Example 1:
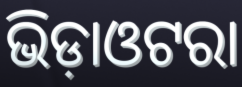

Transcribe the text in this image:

ଭିଡ଼ାଓଟରା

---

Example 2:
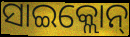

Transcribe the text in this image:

ସାଇକ୍ଲୋନ୍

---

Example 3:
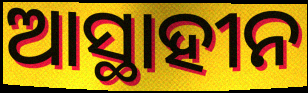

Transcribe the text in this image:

ଆସ୍ଥାହୀନ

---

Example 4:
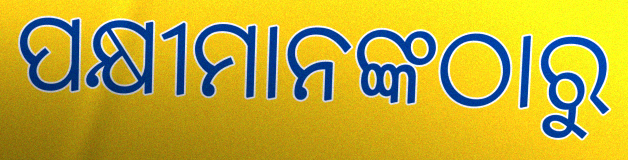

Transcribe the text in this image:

ପକ୍ଷୀମାନଙ୍କଠାରୁ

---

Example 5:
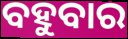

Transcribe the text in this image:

ବହୁବାର